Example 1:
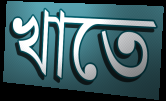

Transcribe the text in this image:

খাতে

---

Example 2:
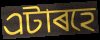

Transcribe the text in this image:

এটাৰহে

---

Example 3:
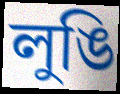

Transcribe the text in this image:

লুঙি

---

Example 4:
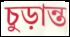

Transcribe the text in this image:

চুড়ান্ত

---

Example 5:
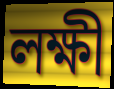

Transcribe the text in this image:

লক্ষী